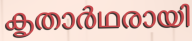
കൃതാർഥരായി